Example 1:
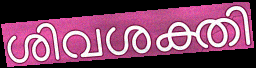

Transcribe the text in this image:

ശിവശക്തി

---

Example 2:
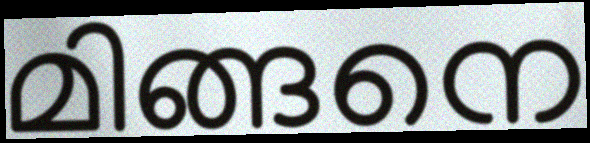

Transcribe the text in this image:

മിങ്ങനെ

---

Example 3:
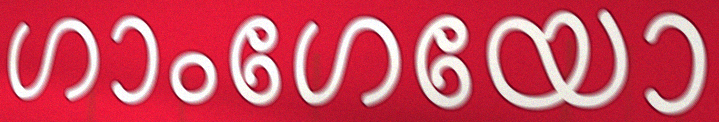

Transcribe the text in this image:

ഗാംഗേയോ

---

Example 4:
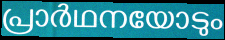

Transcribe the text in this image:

പ്രാർഥനയോടും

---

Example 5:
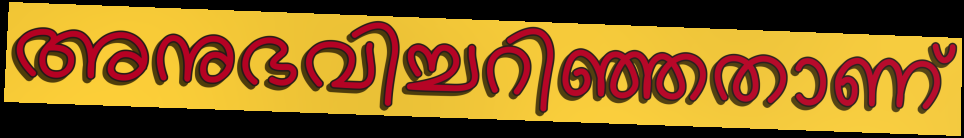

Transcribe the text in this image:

അനുഭവിച്ചറിഞ്ഞതാണ്